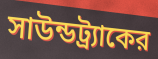
সাউন্ডট্র্যাকের